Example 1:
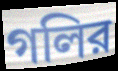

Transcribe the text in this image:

গলির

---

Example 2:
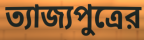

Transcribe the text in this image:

ত্যাজ্যপুত্রের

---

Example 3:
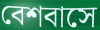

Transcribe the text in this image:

বেশবাসে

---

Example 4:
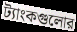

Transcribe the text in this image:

ট্যাংকগুলোর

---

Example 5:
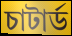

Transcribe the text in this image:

চাটার্ড